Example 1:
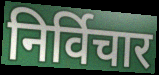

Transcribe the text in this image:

निर्विचार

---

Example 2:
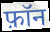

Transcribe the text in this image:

फ़ॉन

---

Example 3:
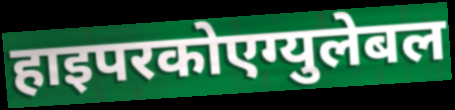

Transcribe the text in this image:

हाइपरकोएग्युलेबल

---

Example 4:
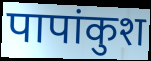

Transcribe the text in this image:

पापांकुश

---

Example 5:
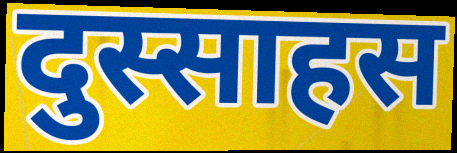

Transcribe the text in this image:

दुस्साहस